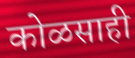
कोळसाही